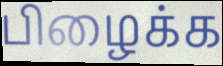
பிழைக்க